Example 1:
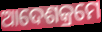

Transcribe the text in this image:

ଆଦେଶକ୍ରମେ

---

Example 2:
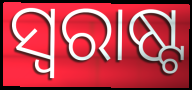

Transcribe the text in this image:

ସ୍ୱରାଷ୍ଟ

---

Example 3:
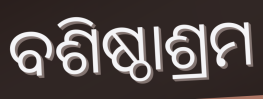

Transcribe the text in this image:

ବଶିଷ୍ଠାଶ୍ରମ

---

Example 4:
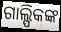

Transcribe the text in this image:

ଗାଲ୍ପିକଙ୍କ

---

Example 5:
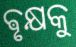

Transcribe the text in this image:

ଵୃକ୍ଷକୁ